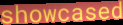
showcased